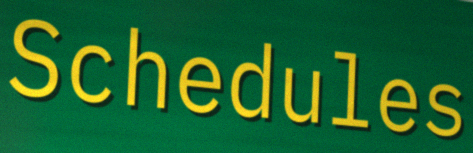
Schedules